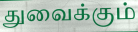
துவைக்கும்